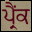
ਪ੍ਰੈਂਕ